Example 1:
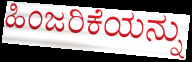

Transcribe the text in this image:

ಹಿಂಜರಿಕೆಯನ್ನು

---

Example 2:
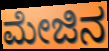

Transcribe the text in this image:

ಮೇಜಿನ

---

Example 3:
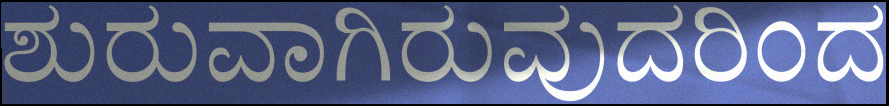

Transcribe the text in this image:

ಶುರುವಾಗಿರುವುದರಿಂದ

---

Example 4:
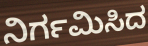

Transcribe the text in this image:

ನಿರ್ಗಮಿಸಿದ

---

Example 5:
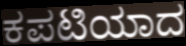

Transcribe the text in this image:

ಕಪಟಿಯಾದ